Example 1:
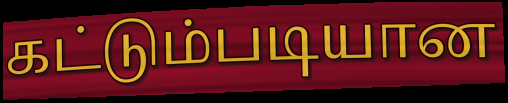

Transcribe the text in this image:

கட்டும்படியான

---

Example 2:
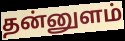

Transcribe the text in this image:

தன்னுளம்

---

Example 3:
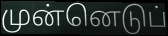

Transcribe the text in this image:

முன்னெடுப்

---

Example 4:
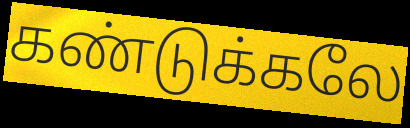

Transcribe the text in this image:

கண்டுக்கலே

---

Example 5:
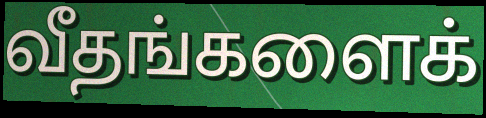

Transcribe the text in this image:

வீதங்களைக்